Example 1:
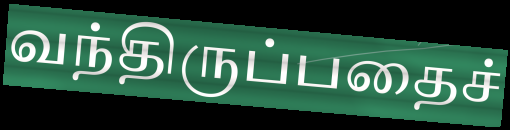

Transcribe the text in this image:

வந்திருப்பதைச்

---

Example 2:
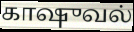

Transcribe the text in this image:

காஷுவல்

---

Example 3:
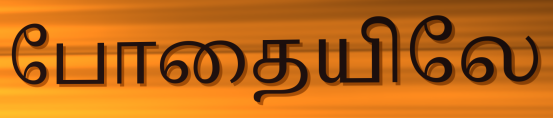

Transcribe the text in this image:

போதையிலே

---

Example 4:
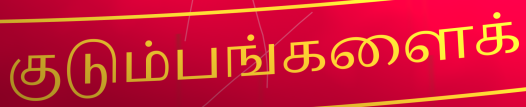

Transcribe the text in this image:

குடும்பங்களைக்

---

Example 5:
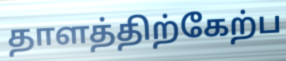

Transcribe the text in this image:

தாளத்திற்கேற்ப